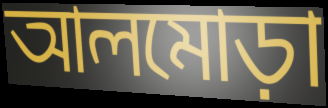
আলমোড়া